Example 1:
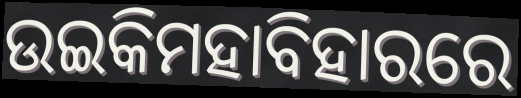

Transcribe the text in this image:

ଉଇକିମହାବିହାରରେ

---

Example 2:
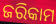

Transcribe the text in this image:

ଜରିକାମ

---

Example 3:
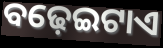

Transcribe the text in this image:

ବଢ଼େଇଟାଏ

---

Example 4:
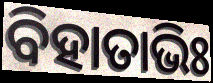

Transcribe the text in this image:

ବିହାତାଭିଃ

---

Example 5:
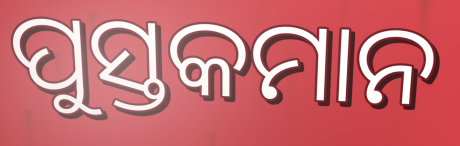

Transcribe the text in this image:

ପୁସ୍ତକମାନ